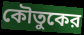
কৌতুকের